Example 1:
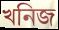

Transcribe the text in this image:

খনিজ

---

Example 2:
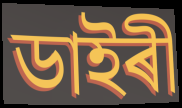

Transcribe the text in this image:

ডাইৰী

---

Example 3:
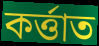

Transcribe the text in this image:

কৰ্ত্তাত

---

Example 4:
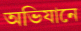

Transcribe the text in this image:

অভিযানে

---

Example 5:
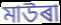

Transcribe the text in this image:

মাউৰা